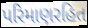
પરિમાણરહિત